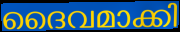
ദൈവമാക്കി